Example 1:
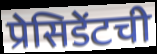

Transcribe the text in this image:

प्रेसिडेंटची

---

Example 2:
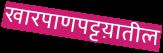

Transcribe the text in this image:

खारपाणपट्टय़ातील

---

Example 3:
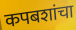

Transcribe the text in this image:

कपबशांचा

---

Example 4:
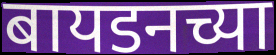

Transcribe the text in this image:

बायडनच्या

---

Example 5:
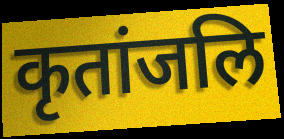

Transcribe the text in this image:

कृतांजलि